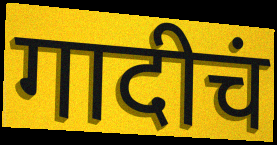
गादीचं